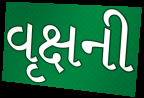
વૃક્ષની